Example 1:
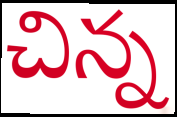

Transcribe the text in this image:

చిన్న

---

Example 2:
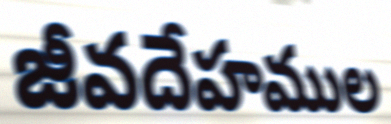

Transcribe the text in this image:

జీవదేహముల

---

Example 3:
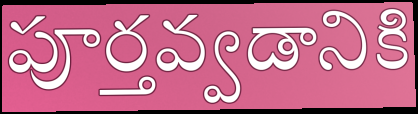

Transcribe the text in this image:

పూర్తవ్వడానికి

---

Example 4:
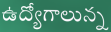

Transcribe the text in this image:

ఉద్యోగాలున్న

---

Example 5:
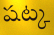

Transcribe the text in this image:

షట్క